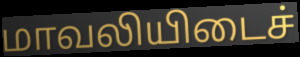
மாவலியிடைச்